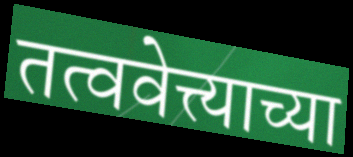
तत्ववेत्त्याच्या